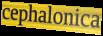
cephalonica